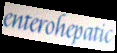
enterohepatic